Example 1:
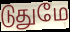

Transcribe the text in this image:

டுதுமே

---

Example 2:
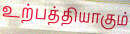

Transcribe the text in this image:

உற்பத்தியாகும்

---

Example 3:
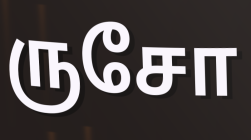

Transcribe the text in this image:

ருசோ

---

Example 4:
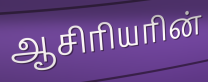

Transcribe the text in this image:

ஆசிரியரின்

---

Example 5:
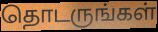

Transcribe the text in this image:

தொடருங்கள்